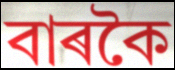
বাৰকৈ